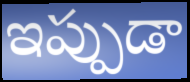
ఇప్పుడా